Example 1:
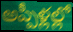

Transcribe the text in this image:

అప్పీళ్లల్లో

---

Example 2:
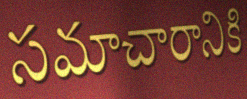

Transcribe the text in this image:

సమాచారానికి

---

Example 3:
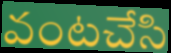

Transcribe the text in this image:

వంటచేసి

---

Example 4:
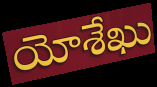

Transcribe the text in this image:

యోశేఖు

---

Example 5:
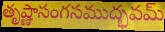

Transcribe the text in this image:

తృష్ణాసంగసముద్భవమ్